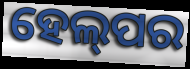
ହେଲ୍‌ପର